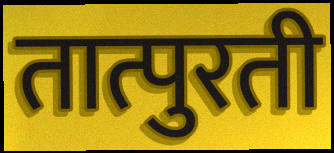
तात्पुरती